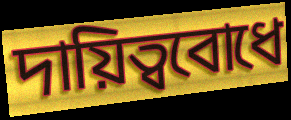
দায়িত্ববোধে